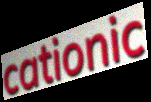
cationic